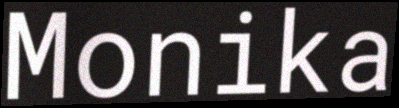
Monika